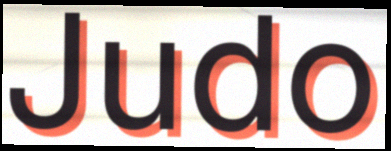
Judo